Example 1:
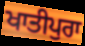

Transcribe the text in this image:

ਖਾਤੀਪੁਰਾ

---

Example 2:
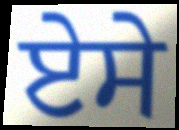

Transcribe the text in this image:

ਏਸੇ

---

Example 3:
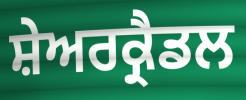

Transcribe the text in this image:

ਸ਼ੇਅਰਕ੍ਰੈਡਲ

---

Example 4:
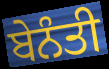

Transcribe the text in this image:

ਬੇਨੰਤੀ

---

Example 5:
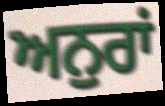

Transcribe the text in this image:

ਅਨੁਰਾਂ